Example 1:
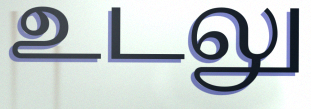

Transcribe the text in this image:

உடலு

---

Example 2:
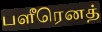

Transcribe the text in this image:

பளீரெனத்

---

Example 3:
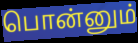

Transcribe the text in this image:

பொன்னும்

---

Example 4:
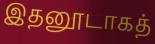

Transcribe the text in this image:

இதனூடாகத்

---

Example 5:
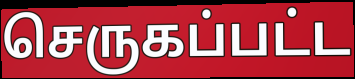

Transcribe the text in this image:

செருகப்பட்ட